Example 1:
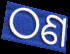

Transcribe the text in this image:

ଠଣ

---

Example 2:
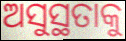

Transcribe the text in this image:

ଅସୁସ୍ଥତାକୁ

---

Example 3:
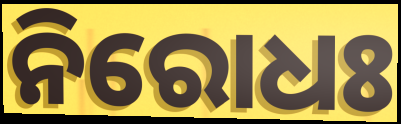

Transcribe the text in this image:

ନିରୋଧଃ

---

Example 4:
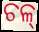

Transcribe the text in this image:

ଚଳ୍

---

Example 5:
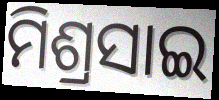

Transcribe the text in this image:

ମିଶ୍ରସାଇ